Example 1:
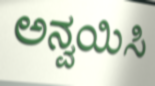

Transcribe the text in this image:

ಅನ್ವಯಿಸಿ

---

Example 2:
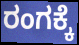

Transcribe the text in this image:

ರಂಗಕ್ಕೆ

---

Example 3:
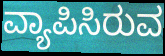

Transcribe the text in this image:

ವ್ಯಾಪಿಸಿರುವ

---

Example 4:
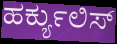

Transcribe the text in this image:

ಹರ್ಕ್ಯುಲಿಸ್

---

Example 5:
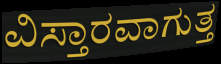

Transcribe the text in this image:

ವಿಸ್ತಾರವಾಗುತ್ತ